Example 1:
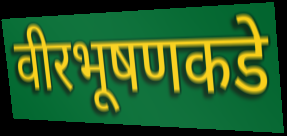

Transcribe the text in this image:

वीरभूषणकडे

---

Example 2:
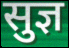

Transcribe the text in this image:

सुज्ञ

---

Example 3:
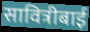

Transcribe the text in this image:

सावित्रीबाई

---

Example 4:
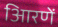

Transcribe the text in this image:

आिरणें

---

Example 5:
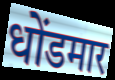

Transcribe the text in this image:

धोंडमार